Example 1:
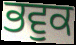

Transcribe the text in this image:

ਭਵੁਕ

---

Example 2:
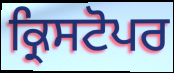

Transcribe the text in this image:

ਕ੍ਰਿਸਟੋਪਰ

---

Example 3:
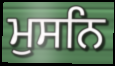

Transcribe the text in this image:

ਮੁਸਨਿ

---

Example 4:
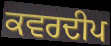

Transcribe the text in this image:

ਕਵਰਦੀਪ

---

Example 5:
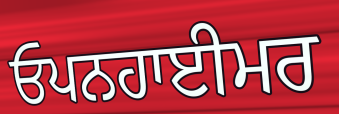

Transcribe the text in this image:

ਓਪਨਹਾਈਮਰ